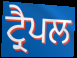
ਟ੍ਰੈਪਲ